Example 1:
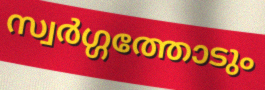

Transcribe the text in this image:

സ്വർഗ്ഗത്തോടും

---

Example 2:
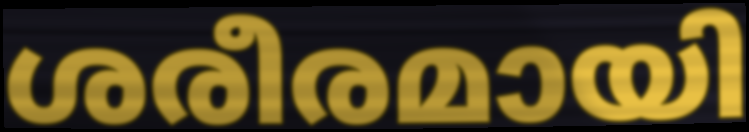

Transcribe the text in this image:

ശരീരമായി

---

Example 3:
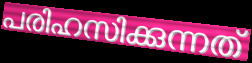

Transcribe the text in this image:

പരിഹസിക്കുന്നത്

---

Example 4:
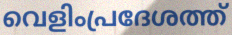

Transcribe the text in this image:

വെളിംപ്രദേശത്ത്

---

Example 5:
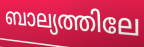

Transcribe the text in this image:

ബാല്യത്തിലേ